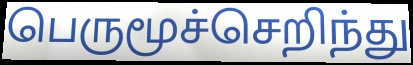
பெருமூச்செறிந்து